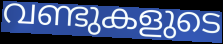
വണ്ടുകളുടെ